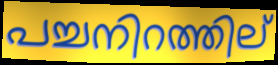
പച്ചനിറത്തില്